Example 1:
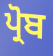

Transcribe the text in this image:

ਪ੍ਰੋਬ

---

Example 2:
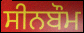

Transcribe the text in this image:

ਸੀਨਬੌਮ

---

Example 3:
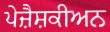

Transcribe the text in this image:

ਪੇਜ਼ੈਸ਼ਕੀਅਨ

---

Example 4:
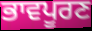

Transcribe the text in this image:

ਭਾਵਪੂਰਣ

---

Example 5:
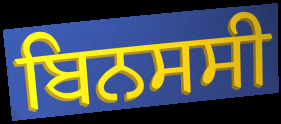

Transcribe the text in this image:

ਬਿਨਸਸੀ